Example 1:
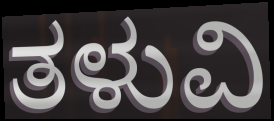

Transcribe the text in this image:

ತಳುವಿ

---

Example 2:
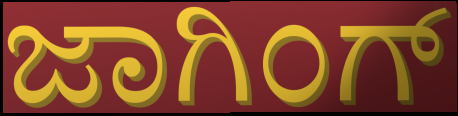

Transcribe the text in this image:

ಜಾಗಿಂಗ್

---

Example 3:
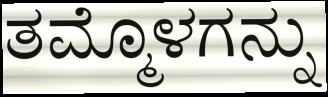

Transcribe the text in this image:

ತಮ್ಮೊಳಗನ್ನು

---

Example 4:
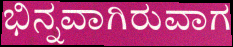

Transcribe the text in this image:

ಭಿನ್ನವಾಗಿರುವಾಗ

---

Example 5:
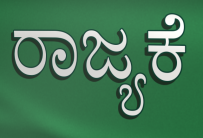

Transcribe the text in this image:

ರಾಜ್ಯಕೆ